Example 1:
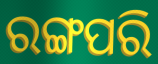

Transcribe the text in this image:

ରଙ୍ଗପରି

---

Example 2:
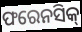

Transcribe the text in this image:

ଫରେନସିକ୍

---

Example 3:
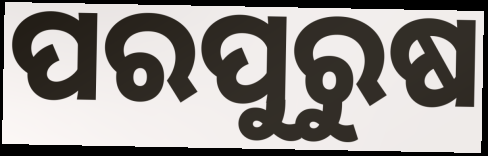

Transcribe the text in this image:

ପରପୁରୁଷ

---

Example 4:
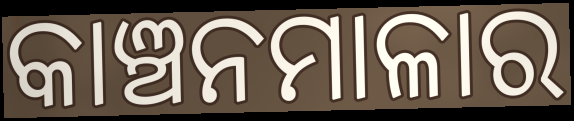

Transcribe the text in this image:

କାଞ୍ଚନମାଳାର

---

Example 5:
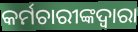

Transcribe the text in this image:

କର୍ମଚାରୀଙ୍କଦ୍ୱାରା